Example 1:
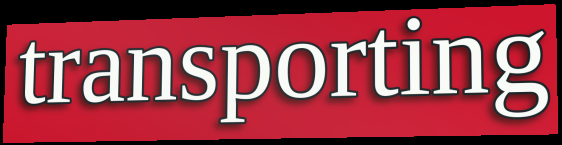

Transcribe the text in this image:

transporting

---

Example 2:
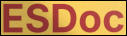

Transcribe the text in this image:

ESDoc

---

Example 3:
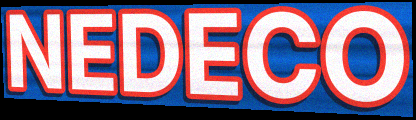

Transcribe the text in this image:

NEDECO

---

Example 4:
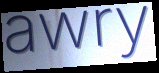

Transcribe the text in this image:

awry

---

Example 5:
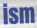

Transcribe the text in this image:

ism